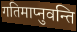
गतिमाप्नुवन्ति